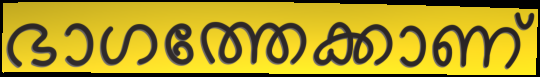
ഭാഗത്തേക്കാണ്